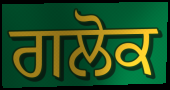
ਗਲੋਕ